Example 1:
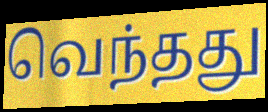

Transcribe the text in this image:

வெந்தது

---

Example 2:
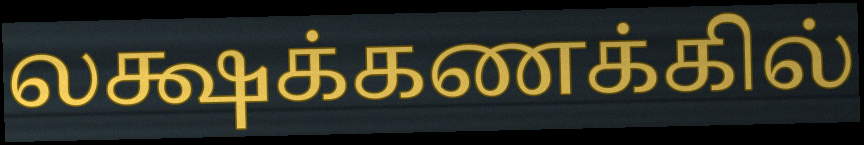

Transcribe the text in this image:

லக்ஷக்கணக்கில்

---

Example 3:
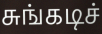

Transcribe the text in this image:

சுங்கடிச்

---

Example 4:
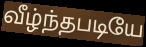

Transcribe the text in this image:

வீழ்ந்தபடியே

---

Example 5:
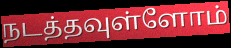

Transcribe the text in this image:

நடத்தவுள்ளோம்